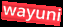
wayuni